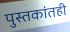
पुस्तकांतही